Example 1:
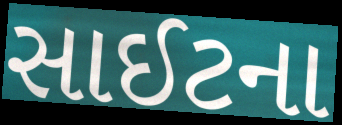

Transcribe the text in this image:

સાઈટના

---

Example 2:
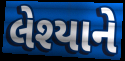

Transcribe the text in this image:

લેશ્યાને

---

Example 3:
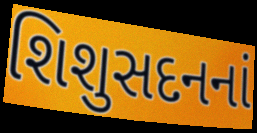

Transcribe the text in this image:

શિશુસદનનાં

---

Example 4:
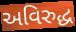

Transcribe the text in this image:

અવિરુદ્ધ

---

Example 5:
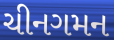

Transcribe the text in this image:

ચીનગમન